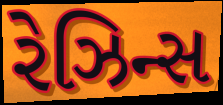
રેઝિન્સ